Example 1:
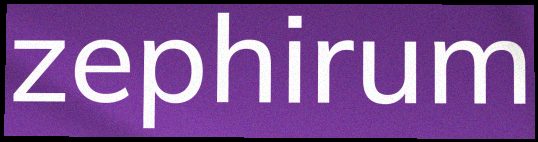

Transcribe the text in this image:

zephirum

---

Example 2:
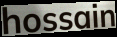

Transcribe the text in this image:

hossain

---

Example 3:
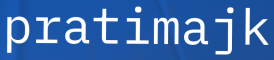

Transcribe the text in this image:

pratimajk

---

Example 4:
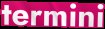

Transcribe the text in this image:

termini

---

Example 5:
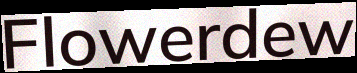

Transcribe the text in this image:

Flowerdew